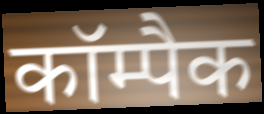
कॉम्पैक